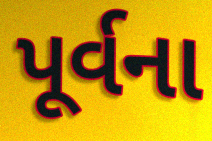
પૂર્વના